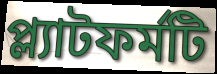
প্ল্যাটফর্মটি